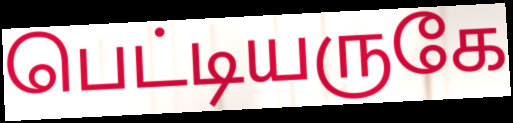
பெட்டியருகே